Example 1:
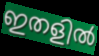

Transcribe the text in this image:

ഇതളിൽ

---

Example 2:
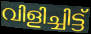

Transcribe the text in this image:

വിളിച്ചിട്ട്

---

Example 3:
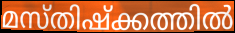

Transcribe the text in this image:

മസ്തിഷ്ക്കത്തിൽ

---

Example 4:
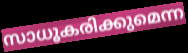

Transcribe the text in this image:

സാധൂകരിക്കുമെന്ന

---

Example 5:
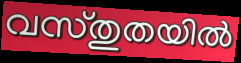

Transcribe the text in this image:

വസ്തുതയിൽ